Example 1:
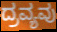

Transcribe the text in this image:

ದ್ರವ್ಯವು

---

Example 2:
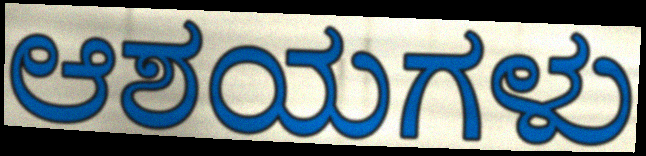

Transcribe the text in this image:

ಆಶಯಗಳು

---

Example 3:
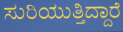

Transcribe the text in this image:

ಸುರಿಯುತ್ತಿದ್ದಾರೆ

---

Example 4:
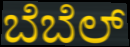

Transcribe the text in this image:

ಬೆಬೆಲ್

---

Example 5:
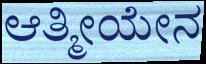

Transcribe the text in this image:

ಆತ್ಮೀಯೇನ